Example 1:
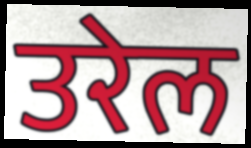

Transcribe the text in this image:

उरेल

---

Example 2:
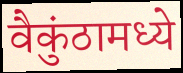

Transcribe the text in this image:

वैकुंठामध्ये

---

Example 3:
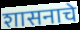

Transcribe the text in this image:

शासनाचे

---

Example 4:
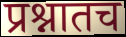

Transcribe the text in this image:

प्रश्नातच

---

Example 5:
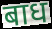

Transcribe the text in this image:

बाध